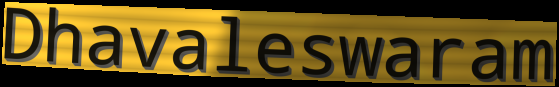
Dhavaleswaram